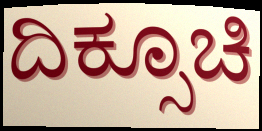
ದಿಕ್ಸೂಚಿ